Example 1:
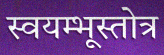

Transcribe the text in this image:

स्वयम्भूस्तोत्र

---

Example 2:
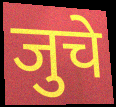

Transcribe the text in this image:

जुचे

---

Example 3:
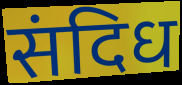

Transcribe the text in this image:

संदिध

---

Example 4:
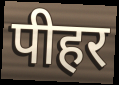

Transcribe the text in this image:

पीहर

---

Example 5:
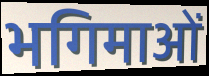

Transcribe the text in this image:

भगिमाओं